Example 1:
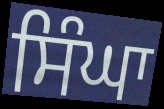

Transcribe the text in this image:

ਸਿੰਘਾ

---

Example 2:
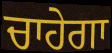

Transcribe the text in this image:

ਚਾਹੇਗਾ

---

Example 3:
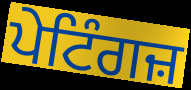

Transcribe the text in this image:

ਪੇਟਿੰਗਜ਼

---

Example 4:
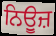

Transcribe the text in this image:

ਨਿਉੂਜ਼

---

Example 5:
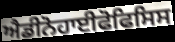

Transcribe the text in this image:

ਐਡੀਨੋਹਾਈਫੋਫਿਸਿਸ